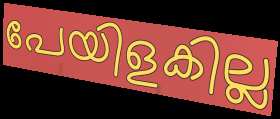
പേയിളകില്ല